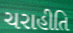
ચરાહીતિ